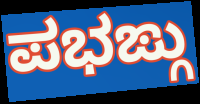
ಪಭಙ್ಗು